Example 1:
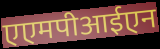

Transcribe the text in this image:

एएमपीआईएन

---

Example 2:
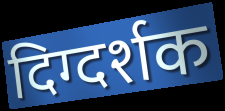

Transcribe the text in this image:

दिग्दर्शक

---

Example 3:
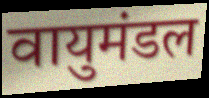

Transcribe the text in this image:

वायुमंडल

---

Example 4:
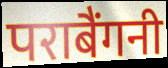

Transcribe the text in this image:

पराबैंगनी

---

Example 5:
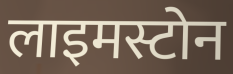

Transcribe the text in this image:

लाइमस्टोन